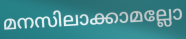
മനസിലാക്കാമല്ലോ